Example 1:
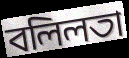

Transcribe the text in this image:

বলিলতা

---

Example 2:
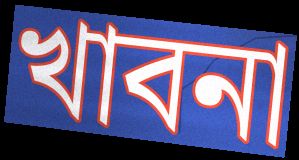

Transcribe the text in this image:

খাবনা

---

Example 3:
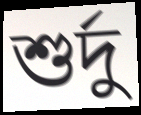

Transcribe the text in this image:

শুর্দু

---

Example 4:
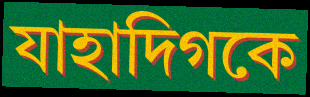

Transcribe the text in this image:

যাহাদিগকে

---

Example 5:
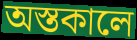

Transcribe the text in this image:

অস্তকালে